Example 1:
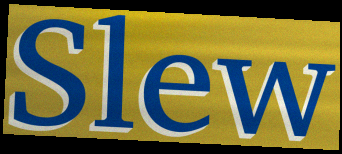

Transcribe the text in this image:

Slew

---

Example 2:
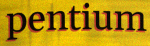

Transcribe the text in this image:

pentium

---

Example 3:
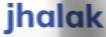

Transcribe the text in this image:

jhalak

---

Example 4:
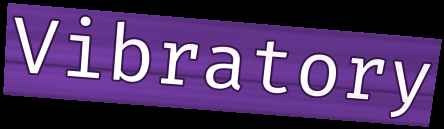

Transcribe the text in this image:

Vibratory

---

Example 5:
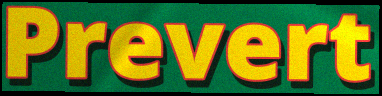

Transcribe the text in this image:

Prevert